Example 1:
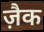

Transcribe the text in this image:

ज़ैक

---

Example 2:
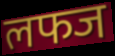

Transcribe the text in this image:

लफज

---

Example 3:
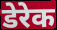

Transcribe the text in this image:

डेरेक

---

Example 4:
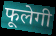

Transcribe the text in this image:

फूलेगी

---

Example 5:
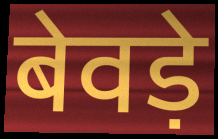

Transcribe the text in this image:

बेवड़े